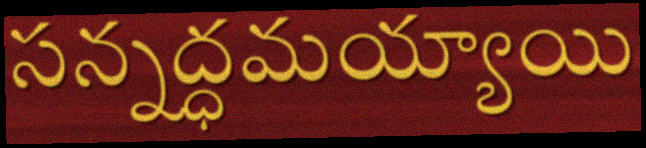
సన్నద్ధమయ్యాయి